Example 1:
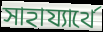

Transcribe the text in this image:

সাহায্যাৰ্থে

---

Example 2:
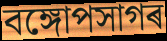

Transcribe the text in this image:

বঙ্গোপসাগৰ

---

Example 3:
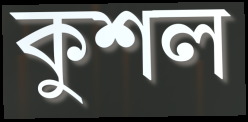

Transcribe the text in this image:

কুশল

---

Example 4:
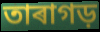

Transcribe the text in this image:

তাৰাগড়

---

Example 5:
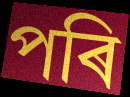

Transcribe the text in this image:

পৰি